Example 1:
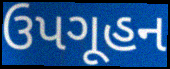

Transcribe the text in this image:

ઉપગૂહન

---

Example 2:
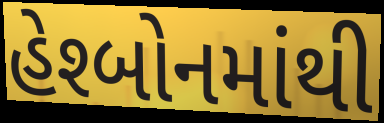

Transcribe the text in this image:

હેશ્બોનમાંથી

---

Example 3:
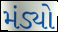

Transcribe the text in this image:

મંડ્યો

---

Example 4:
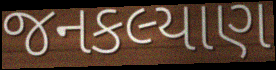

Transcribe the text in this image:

જનકલ્યાણ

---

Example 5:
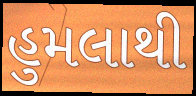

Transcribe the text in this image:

હુમલાથી